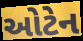
ઓટેન